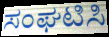
ಸಂಘಟಿಸಿ